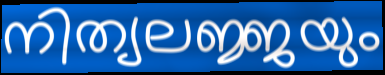
നിത്യലജ്ജയും